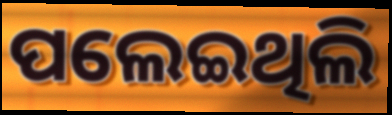
ପଲେଇଥିଲି